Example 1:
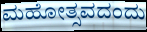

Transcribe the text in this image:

ಮಹೋತ್ಸವದಂದು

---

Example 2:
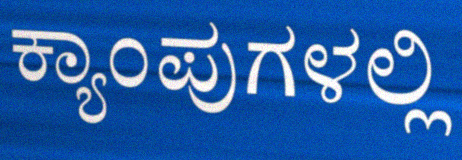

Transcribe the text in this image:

ಕ್ಯಾಂಪುಗಳಲ್ಲಿ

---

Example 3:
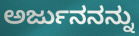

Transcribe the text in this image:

ಅರ್ಜುನನನ್ನು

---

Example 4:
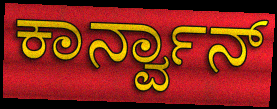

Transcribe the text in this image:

ಕಾರ್ನ್ವಾನ್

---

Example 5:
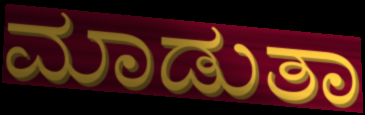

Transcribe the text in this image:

ಮಾಡುತಾ